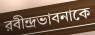
রবীন্দ্রভাবনাকে